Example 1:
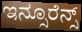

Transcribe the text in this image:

ಇನ್ಸೂರೆನ್ಸ್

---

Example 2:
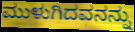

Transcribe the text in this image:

ಮುಳುಗಿದವನನ್ನು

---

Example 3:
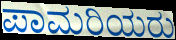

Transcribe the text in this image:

ಪಾಮರಿಯರು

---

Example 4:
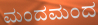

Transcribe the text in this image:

ಮಂದಮಂದ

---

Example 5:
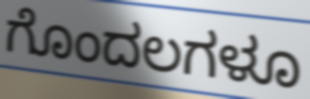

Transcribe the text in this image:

ಗೊಂದಲಗಳೂ